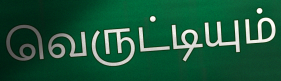
வெருட்டியும்